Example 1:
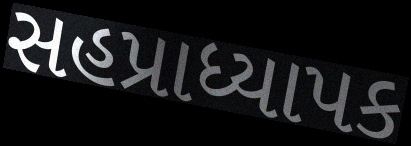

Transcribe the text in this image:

સહપ્રાધ્યાપક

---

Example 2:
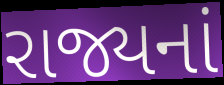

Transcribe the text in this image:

રાજ્યનાં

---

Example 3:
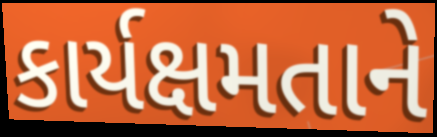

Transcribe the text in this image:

કાર્યક્ષમતાને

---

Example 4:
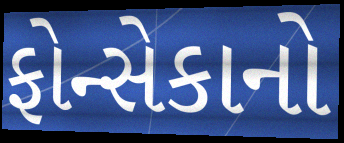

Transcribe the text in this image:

ફોન્સેકાનો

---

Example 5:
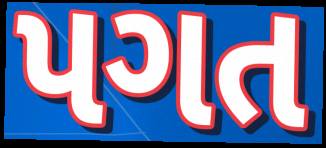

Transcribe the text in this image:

પગત